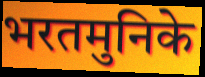
भरतमुनिके